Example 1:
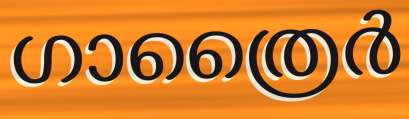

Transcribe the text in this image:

ഗാത്രൈർ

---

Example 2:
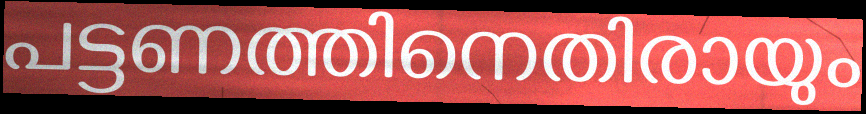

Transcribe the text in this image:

പട്ടണത്തിനെതിരായും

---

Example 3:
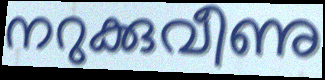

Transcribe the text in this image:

നറുക്കുവീണു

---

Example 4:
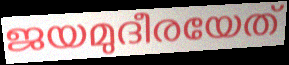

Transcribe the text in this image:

ജയമുദീരയേത്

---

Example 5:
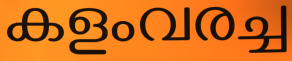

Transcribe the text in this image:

കളംവരച്ച